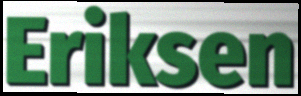
Eriksen